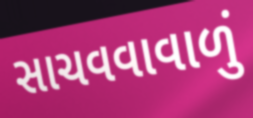
સાચવવાવાળું